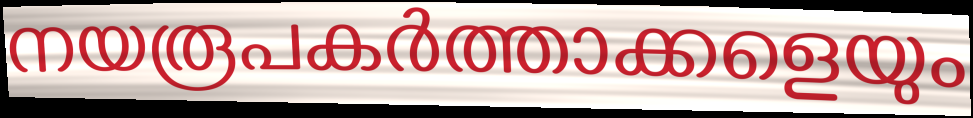
നയരൂപകർത്താക്കളെയും